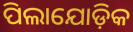
ପିଲାଯୋଡ଼ିକ